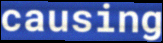
causing